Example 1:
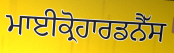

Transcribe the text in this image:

ਮਾਈਕ੍ਰੋਹਾਰਡਨੈੱਸ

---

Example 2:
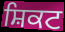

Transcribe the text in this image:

ਸ਼ਿਕਟ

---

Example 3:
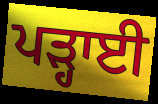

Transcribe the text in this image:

ਪੜ੍ਹਾਈ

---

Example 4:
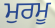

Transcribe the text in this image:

ਮੁਰਮੂ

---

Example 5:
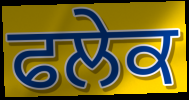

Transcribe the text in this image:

ਫਲੇਕ